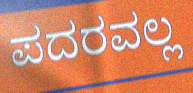
ಪದರವಲ್ಲ